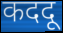
कददू